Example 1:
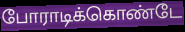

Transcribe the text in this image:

போராடிக்கொண்டே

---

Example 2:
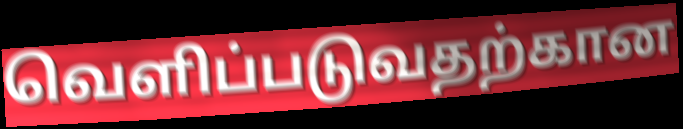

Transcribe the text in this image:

வெளிப்படுவதற்கான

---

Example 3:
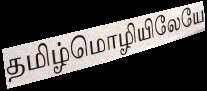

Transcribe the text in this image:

தமிழ்மொழியிலேயே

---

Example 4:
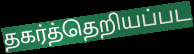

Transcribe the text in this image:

தகர்த்தெறியப்பட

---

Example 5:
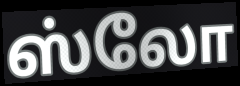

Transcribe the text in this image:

ஸ்லோ